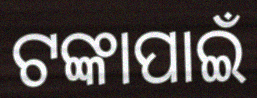
ଟଙ୍କାପାଇଁ